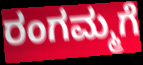
ರಂಗಮ್ಮಗೆ